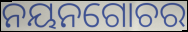
ନୟନଗୋଚର